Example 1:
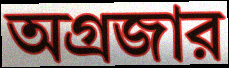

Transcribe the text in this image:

অগ্রজার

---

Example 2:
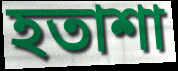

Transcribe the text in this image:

হতাশা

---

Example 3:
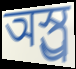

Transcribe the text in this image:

অস্ত্র্র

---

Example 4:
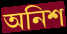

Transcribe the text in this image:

অনিশ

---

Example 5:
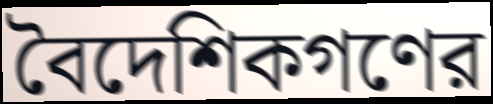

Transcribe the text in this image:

বৈদেশিকগণের